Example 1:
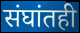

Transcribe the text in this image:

संघांतही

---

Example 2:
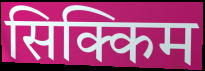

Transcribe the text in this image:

सिक्किम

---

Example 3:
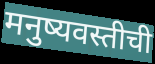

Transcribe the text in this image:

मनुष्यवस्तीची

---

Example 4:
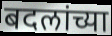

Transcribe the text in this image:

बदलांच्या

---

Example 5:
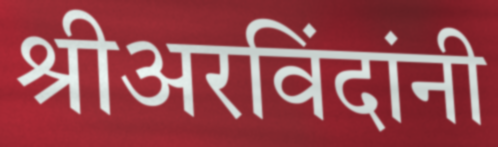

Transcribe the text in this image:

श्रीअरविंदांनी